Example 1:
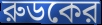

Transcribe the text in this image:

রুডকের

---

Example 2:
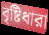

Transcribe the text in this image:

বৃষ্টিধারা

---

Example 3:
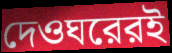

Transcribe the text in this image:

দেওঘরেরই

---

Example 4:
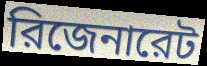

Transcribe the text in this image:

রিজেনারেট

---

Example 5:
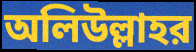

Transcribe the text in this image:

অলিউল্লাহর